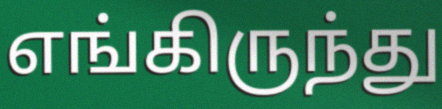
எங்கிருந்து